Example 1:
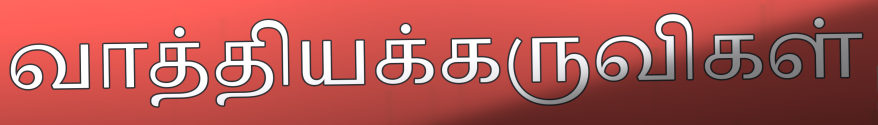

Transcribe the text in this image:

வாத்தியக்கருவிகள்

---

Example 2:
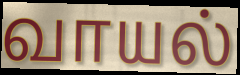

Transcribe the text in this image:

வாயல்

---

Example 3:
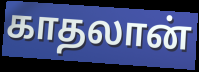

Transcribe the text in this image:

காதலான்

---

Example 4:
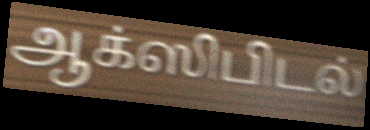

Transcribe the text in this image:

ஆக்ஸிபிடல்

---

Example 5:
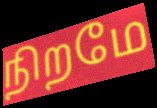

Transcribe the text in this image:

நிறமே